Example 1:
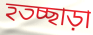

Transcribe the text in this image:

হতচ্ছাড়া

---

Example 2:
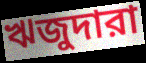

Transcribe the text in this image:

ঋজুদারা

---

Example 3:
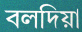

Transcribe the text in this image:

বলদিয়া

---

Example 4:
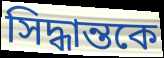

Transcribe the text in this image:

সিদ্ধান্তকে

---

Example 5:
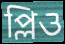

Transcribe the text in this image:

প্লিও